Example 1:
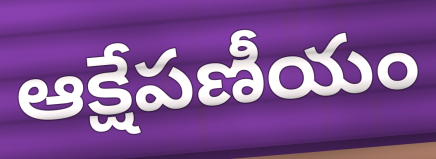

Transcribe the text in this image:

ఆక్షేపణీయం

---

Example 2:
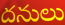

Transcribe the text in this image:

దనులు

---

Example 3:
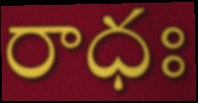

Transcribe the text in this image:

రాధః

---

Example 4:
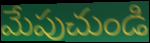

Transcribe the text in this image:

మేపుచుండి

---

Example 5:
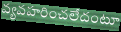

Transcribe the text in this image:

వ్యవహరించలేదంటూ